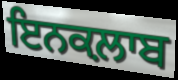
ਇਨਕ਼ਲਾਬ